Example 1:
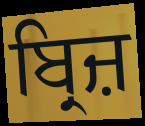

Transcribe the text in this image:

ਬ੍ਰਿਜ਼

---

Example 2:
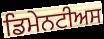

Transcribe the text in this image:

ਡਿਮੇਨਟੀਅਸ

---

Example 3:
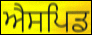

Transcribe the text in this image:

ਐਸਪਿਡ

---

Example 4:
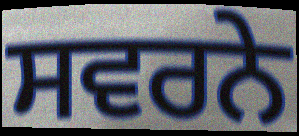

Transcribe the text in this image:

ਸਵਰਨੇ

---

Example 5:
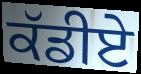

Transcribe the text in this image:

ਕੱਡੀਏ